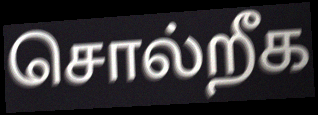
சொல்றீக